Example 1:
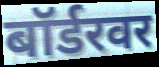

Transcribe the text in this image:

बॉर्डरवर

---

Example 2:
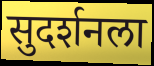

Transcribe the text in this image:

सुदर्शनला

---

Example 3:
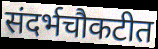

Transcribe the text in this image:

संदर्भचौकटीत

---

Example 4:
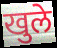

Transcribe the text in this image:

खुले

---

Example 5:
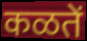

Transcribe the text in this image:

कळतें